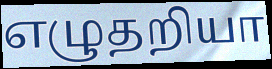
எழுதறியா